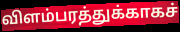
விளம்பரத்துக்காகச்